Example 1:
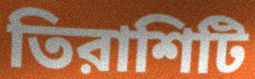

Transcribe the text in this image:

তিরাশিটি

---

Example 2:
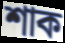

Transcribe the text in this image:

শাক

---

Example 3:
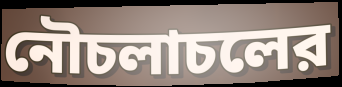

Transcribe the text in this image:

নৌচলাচলের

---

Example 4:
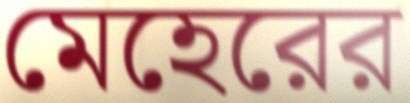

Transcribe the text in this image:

মেহেরের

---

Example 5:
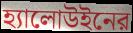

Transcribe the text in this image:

হ্যালোউইনের